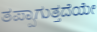
ತಪ್ಪಾಗುತ್ತದೆಯೇ